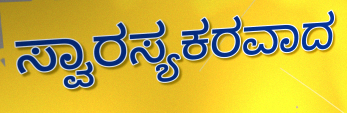
ಸ್ವಾರಸ್ಯಕರವಾದ